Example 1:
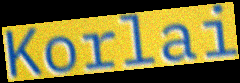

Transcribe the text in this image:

Korlai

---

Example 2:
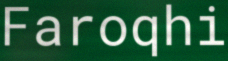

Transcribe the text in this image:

Faroqhi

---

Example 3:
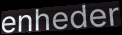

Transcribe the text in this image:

enheder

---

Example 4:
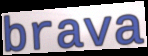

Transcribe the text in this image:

brava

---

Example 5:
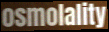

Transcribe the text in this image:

osmolality